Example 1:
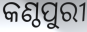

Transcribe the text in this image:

କଣ୍ଠପୁରୀ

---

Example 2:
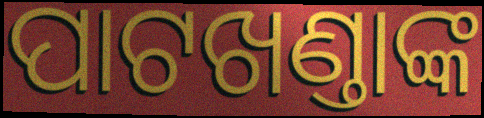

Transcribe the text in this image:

ପାଟଖଣ୍ତାଙ୍କ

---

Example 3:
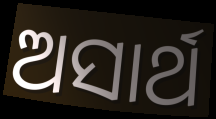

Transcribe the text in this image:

ଅସାର୍ଥ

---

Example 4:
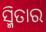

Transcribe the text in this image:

ସ୍ମିତାର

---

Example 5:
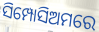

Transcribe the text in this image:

ସିମ୍ପୋସିଅମରେ